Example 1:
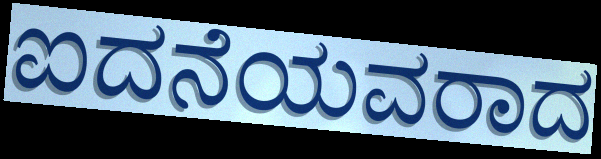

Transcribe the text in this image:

ಐದನೆಯವರಾದ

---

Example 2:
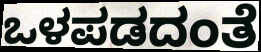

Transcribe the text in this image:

ಒಳಪಡದಂತೆ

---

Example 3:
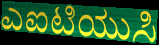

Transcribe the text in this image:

ಎಐಟಿಯುಸಿ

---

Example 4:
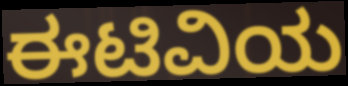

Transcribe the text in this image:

ಈಟಿವಿಯ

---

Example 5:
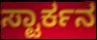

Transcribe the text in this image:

ಸ್ಟಾರ್ಕನ